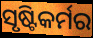
ସୃଷ୍ଟିକର୍ମର